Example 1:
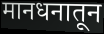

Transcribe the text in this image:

मानधनातून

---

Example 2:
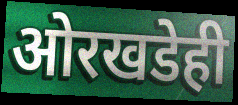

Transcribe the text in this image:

ओरखडेही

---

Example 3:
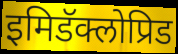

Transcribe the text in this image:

इमिडॅक्लोप्रिड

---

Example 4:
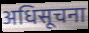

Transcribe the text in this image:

अधिसूचना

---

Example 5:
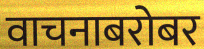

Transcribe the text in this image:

वाचनाबरोबर